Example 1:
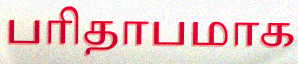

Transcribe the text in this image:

பரிதாபமாக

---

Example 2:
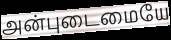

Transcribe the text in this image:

அன்புடைமையே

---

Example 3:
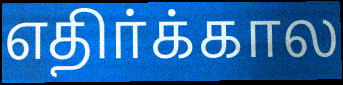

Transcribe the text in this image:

எதிர்க்கால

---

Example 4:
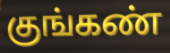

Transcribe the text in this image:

குங்கண்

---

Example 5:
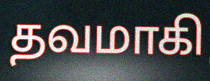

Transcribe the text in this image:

தவமாகி